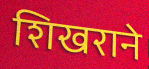
शिखराने